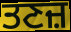
ਤਣਜ਼